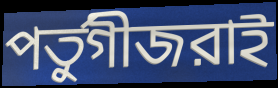
পর্তুগীজরাই